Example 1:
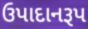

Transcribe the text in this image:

ઉપાદાનરૂપ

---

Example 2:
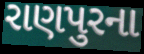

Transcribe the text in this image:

રાણપુરના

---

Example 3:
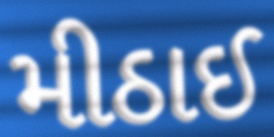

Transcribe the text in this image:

મીઠાઈ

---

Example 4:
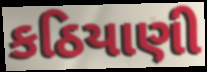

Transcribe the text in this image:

કઠિયાણી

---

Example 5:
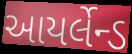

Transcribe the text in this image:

આયર્લેન્ડ